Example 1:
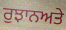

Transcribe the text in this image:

ਰੁਝਾਨਅਤੇ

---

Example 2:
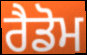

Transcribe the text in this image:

ਰੈਡੋਮ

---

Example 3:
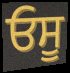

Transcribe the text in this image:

ਓਸੂ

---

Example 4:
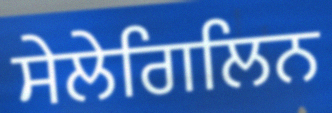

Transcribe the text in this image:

ਸੇਲੇਗਿਲਿਨ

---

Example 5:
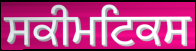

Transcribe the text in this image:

ਸਕੀਮਟਿਕਸ